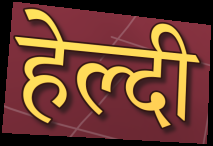
हेल्दी